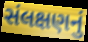
સંલક્ષણનું